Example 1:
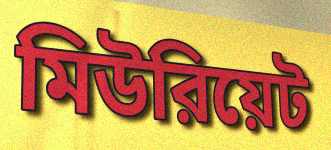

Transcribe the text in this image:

মিউরিয়েট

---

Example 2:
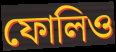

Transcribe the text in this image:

ফোলিও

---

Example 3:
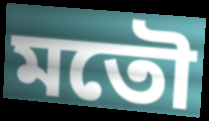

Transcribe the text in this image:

মতৌ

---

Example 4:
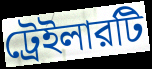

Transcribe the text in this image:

ট্রেইলারটি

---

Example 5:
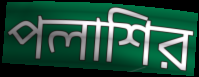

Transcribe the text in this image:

পলাশির